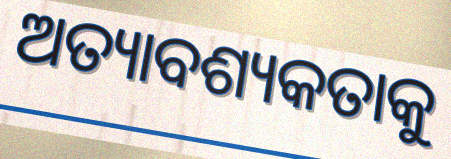
ଅତ୍ୟାବଶ୍ୟକତାକୁ